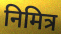
निमित्र